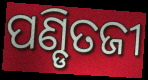
ପଣ୍ଡିତଜୀ